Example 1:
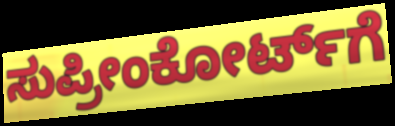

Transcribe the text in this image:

ಸುಪ್ರೀಂಕೋರ್ಟ್‌ಗೆ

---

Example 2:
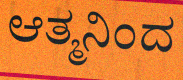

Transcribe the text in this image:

ಆತ್ಮನಿಂದ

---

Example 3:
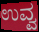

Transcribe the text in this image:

ಉವ್ವ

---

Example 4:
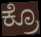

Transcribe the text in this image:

ಕ್ರೊ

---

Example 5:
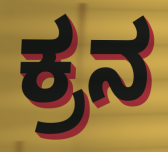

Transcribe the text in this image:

ಕ್ರನ